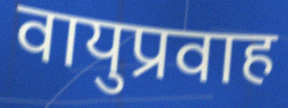
वायुप्रवाह